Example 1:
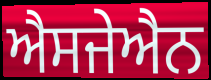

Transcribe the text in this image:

ਐਸਜੇਐਨ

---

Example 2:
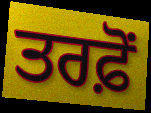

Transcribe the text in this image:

ਤਰਫ਼ੋਂ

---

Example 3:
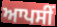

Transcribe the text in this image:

ਆਪਸੀਂ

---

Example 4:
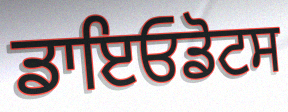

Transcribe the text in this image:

ਡਾਇਓਡੋਟਸ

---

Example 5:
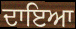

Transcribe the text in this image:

ਦਾਇਆ